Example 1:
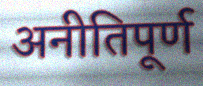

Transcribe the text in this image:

अनीतिपूर्ण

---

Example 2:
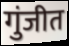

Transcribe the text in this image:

गुंजीत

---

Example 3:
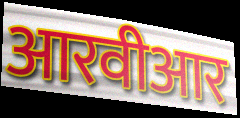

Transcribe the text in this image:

आरवीआर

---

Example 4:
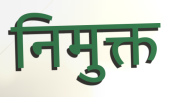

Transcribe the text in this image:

निमुक्त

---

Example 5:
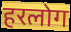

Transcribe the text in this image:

हरलोग